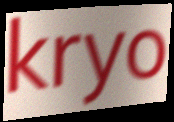
kryo